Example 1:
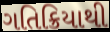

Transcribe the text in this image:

ગતિક્રિયાથી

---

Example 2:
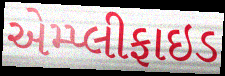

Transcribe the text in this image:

એમ્પ્લીફાઇડ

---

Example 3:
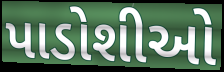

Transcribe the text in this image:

પાડોશીઓ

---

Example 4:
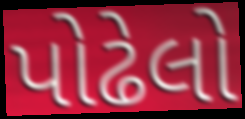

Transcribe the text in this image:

પોઢેલો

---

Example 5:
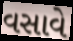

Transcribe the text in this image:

વસાવે